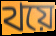
থয়ে